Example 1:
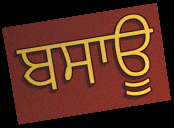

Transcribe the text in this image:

ਬਸਾਊ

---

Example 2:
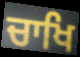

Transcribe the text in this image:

ਚਾਖਿ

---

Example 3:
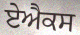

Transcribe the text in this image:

ਏਐਕਸ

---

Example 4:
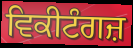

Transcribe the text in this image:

ਵਿਕੀਟੰਗਜ਼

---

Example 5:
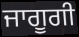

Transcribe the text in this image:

ਜਾਗੂਗੀ